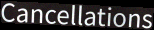
Cancellations